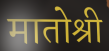
मातोश्री